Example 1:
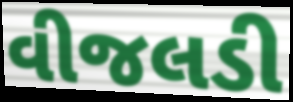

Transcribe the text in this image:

વીજલડી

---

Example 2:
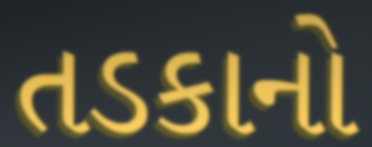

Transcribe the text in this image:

તડકાનો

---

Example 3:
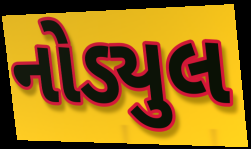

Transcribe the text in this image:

નોડ્યુલ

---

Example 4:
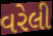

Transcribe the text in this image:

વરેલી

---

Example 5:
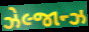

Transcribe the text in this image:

ઝેલ્જાન્ઝ